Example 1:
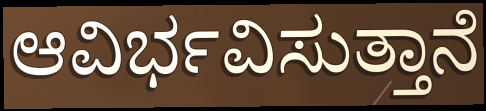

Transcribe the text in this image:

ಆವಿರ್ಭವಿಸುತ್ತಾನೆ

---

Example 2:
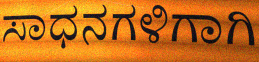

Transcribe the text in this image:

ಸಾಧನಗಳಿಗಾಗಿ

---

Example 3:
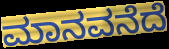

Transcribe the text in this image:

ಮಾನವನೆದೆ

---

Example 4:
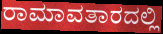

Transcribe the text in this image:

ರಾಮಾವತಾರದಲ್ಲಿ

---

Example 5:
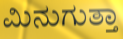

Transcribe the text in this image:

ಮಿನುಗುತ್ತಾ